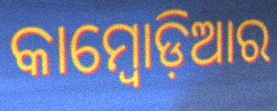
କାମ୍ବୋଡ଼ିଆର